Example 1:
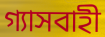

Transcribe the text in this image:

গ্যাসবাহী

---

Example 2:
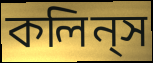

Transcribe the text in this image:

কলিন্‌স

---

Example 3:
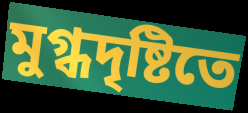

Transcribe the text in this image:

মুগ্ধদৃষ্টিতে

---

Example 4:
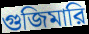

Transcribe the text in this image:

গুজিমারি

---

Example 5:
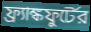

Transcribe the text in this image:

ফ্র্যাঙ্কফুর্টের